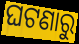
ଘଟଣାରୁ